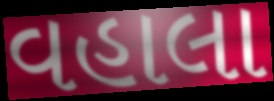
વહાલા